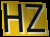
HZ